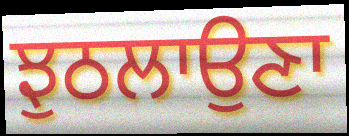
ਝੁਠਲਾਉਣਾ